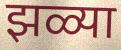
झळ्या